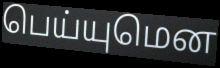
பெய்யுமென